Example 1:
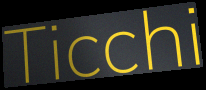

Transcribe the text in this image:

Ticchi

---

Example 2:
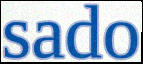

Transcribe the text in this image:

sado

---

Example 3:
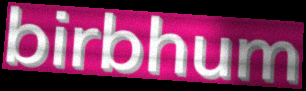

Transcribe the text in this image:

birbhum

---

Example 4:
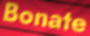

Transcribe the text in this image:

Bonate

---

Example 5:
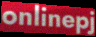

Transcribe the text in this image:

onlinepj